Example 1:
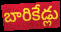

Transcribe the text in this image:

బారికేడ్లు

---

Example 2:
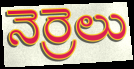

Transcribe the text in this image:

నెర్రెలు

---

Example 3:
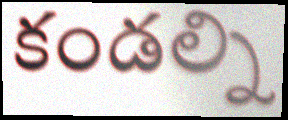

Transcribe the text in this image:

కండల్ని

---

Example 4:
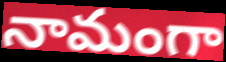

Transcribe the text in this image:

నామంగా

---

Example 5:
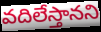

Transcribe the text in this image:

వదిలేస్తానని